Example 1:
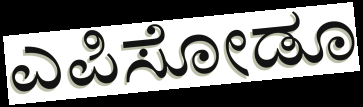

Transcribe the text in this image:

ಎಪಿಸೋಡೂ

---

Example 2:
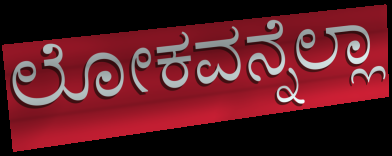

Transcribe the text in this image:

ಲೋಕವನ್ನೆಲ್ಲಾ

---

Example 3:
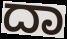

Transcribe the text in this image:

ದಾ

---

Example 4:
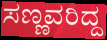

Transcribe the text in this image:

ಸಣ್ಣವರಿದ್ದ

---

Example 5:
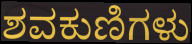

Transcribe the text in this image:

ಶವಕುಣಿಗಳು